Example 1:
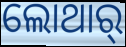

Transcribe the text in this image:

ଲୋଥାର୍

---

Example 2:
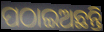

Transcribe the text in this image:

ପଠାଇଅଛନ୍ତି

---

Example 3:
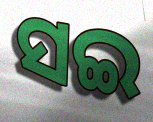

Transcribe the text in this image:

ସଇ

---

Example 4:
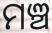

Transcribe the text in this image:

ମଞ୍ଚ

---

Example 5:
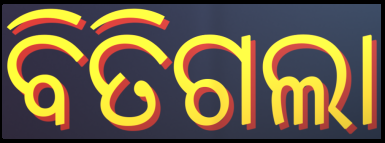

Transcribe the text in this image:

ବିତିଗଲା